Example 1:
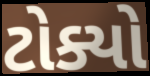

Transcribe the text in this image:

ટોક્યો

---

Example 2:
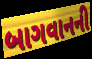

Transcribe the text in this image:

બાગવાનની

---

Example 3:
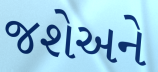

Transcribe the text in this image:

જશેઅને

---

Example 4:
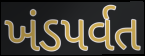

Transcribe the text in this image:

ખંડપર્વત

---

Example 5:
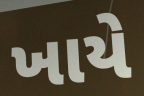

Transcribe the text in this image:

ખાયે